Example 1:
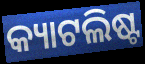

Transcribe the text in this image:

କ୍ୟାଟଲିଷ୍ଟ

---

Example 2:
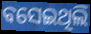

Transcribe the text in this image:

ବସେଇଥିଲି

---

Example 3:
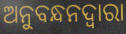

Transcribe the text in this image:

ଅନୁବନ୍ଧନଦ୍ୱାରା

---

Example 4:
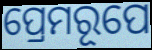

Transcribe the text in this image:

ପ୍ରେମରୂପେ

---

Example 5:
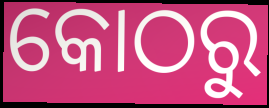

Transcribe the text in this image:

କୋଠରୁ